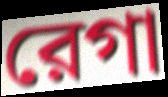
রেগা